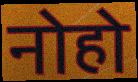
नोहो